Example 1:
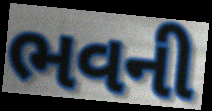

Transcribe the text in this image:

ભવની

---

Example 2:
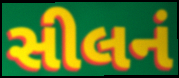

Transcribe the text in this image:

સીલનં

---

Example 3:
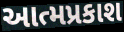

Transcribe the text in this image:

આત્મપ્રકાશ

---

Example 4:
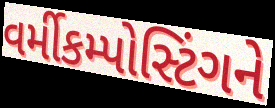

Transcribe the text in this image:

વર્મીકમ્પોસ્ટિંગને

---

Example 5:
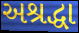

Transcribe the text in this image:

અશ્રદ્ધા